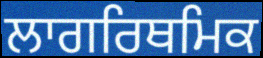
ਲਾਗਰਿਥਮਿਕ